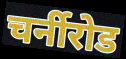
चर्नीरोड